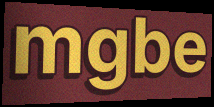
mgbe